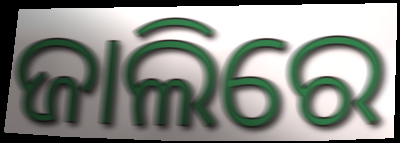
ଜାଲିରେ